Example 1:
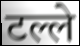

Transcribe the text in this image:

टल्ले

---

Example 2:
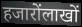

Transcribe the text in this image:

हजारोंलाखों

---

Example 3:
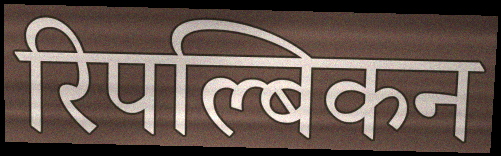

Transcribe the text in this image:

रिपल्बिकन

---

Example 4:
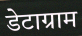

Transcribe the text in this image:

डेटाग्राम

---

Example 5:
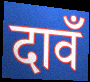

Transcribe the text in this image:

दावँ